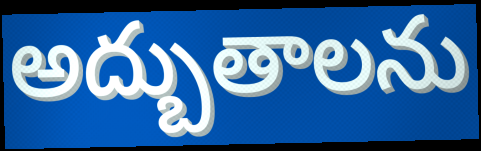
అద్బుతాలను